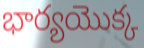
భార్యయొక్క